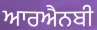
ਆਰਐਨਬੀ